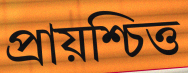
প্রায়শ্চিত্ত